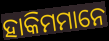
ହାକିମମାନେ